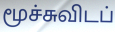
மூச்சுவிடப்